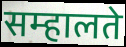
सम्हालते